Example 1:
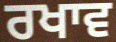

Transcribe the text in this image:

ਰਖਾਵ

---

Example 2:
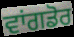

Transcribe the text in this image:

ਵਾਂਗਡੋਰ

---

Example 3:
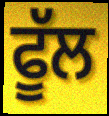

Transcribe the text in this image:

ਫੂੱਲ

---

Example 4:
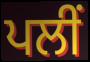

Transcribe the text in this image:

ਪਲੀਂ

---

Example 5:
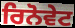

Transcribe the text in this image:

ਰਿਨੋਵੇਟ